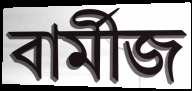
বাৰ্মীজ